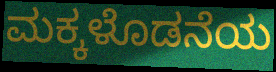
ಮಕ್ಕಳೊಡನೆಯ